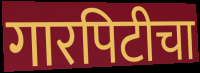
गारपिटीचा